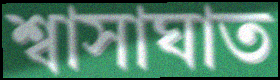
শ্বাসাঘাত